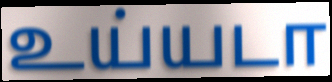
உய்யடா